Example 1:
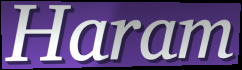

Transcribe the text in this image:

Haram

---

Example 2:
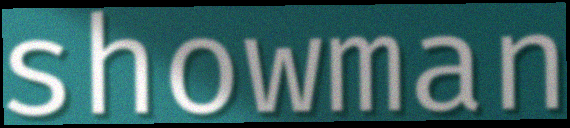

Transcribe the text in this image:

showman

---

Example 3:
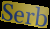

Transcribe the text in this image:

Serb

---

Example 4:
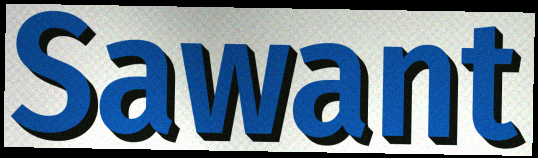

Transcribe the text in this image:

Sawant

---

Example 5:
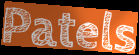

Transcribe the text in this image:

Patels